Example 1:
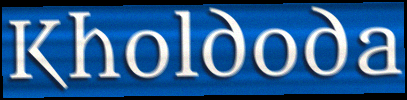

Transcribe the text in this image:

Kholdoda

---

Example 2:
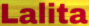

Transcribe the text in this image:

Lalita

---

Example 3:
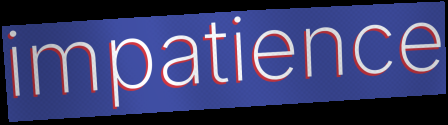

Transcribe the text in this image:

impatience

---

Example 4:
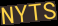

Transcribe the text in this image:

NYTS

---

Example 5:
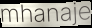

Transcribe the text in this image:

mhanaje